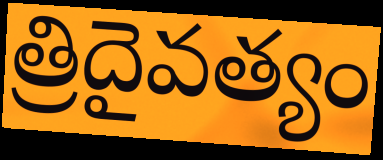
త్రిదైవత్యం